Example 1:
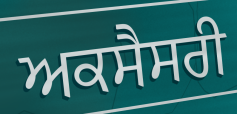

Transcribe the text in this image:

ਅਕਸੈਸਰੀ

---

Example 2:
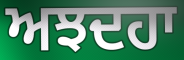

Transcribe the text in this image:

ਅਝਦਹਾ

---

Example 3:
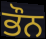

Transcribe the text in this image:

ਭੌਨ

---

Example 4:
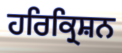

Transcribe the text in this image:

ਹਰਿਕ੍ਰਿਸ਼ਨ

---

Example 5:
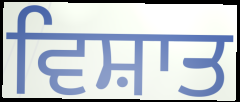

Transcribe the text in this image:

ਵਿਸ਼ਾਤ